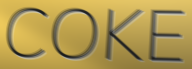
COKE